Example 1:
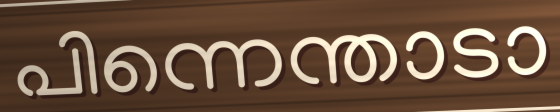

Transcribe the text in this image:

പിന്നെന്താടാ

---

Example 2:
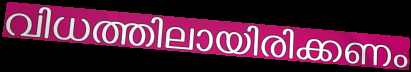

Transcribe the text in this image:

വിധത്തിലായിരിക്കണം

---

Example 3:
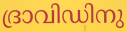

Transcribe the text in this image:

ദ്രാവിഡിനു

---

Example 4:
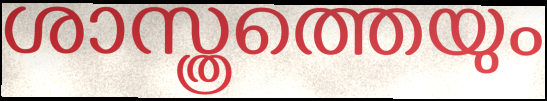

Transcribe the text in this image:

ശാസ്ത്രത്തെയും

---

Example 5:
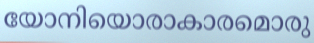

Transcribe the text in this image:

യോനിയൊരാകാരമൊരു